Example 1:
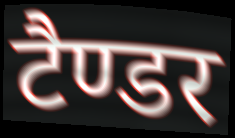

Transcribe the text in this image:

टैण्डर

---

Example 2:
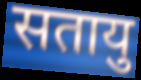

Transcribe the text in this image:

सतायु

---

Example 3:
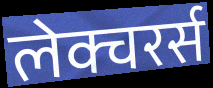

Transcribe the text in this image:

लेक्चरर्स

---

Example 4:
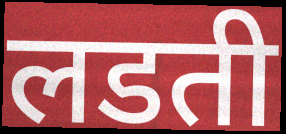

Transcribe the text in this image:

लडती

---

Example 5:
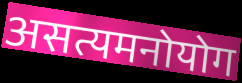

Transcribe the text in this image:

असत्यमनोयोग